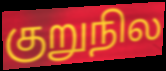
குறுநில